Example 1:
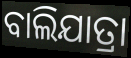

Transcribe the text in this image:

ବାଲିଯାତ୍ରା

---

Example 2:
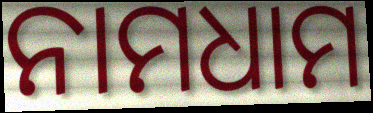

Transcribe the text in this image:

ନାମଧାମ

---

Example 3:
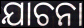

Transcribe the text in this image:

ଯାଚନା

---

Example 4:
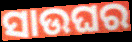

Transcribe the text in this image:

ସାଉଘର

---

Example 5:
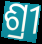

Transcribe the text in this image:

ଶ୍ରୀ